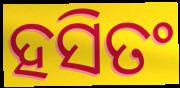
ହସିତଂ